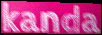
kanda